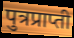
पुत्रप्राप्ती